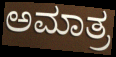
ಅಮಾತ್ರ